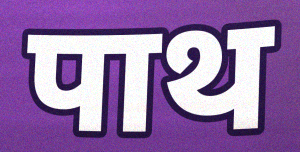
पाथ